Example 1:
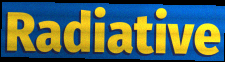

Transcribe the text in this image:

Radiative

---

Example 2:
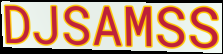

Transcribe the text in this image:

DJSAMSS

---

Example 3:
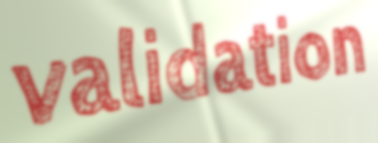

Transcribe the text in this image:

validation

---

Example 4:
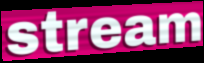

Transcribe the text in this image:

stream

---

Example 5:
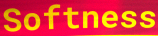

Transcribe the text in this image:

Softness